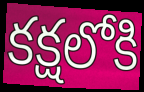
కక్షలోకి